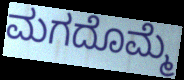
ಮಗದೊಮ್ಮೆ